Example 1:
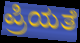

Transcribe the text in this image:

ಪ್ರಿಯತೆ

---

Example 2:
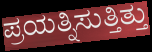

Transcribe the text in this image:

ಪ್ರಯತ್ನಿಸುತ್ತಿತ್ತು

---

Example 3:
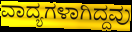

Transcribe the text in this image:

ವಾದ್ಯಗಳಾಗಿದ್ದವು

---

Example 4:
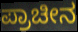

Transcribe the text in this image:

ಪ್ರಾಚೀನ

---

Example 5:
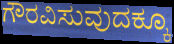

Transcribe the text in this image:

ಗೌರವಿಸುವುದಕ್ಕೂ